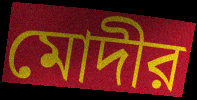
মোদীর